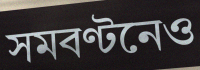
সমবণ্টনেও